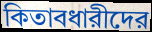
কিতাবধারীদের